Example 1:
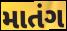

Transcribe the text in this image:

માતંગ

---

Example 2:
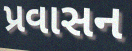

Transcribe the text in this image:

પ્રવાસન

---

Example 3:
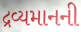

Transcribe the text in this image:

દ્રવ્યમાનની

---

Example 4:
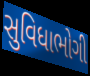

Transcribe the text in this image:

સુવિધાભોગી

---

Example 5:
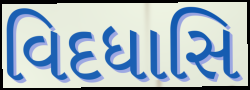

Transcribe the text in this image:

વિદધાસિ